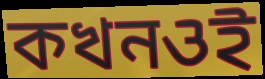
কখনওই